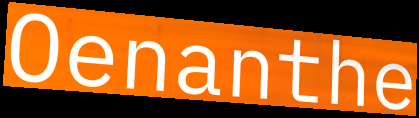
Oenanthe